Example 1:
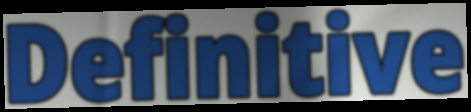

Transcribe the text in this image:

Definitive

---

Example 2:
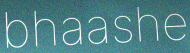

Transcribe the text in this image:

bhaashe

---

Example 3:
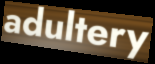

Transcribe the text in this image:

adultery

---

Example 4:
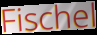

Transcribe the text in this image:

Fischel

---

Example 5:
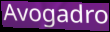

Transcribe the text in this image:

Avogadro